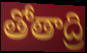
తోతాద్రి